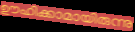
ഊഹിക്കാമായിരുന്നു